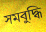
সমবুদ্ধি